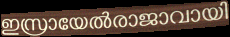
ഇസ്രായേൽരാജാവായി